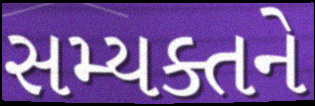
સમ્યક્તને